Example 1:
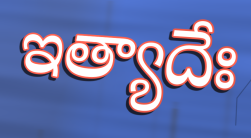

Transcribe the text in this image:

ఇత్యాదేః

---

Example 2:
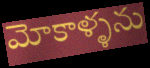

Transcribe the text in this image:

మోకాళ్ళను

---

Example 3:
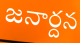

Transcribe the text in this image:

జనార్దన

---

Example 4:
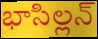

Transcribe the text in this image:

భాసిల్లన్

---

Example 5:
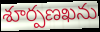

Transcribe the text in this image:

శూర్పణఖను